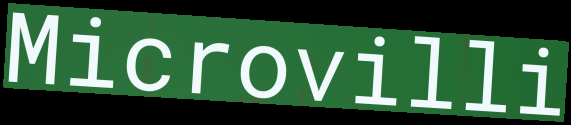
Microvilli